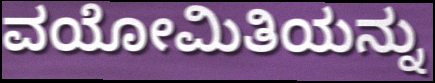
ವಯೋಮಿತಿಯನ್ನು